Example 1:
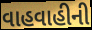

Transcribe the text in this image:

વાહવાહીની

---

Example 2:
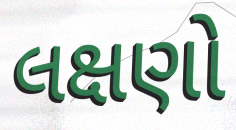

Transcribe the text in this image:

લક્ષણો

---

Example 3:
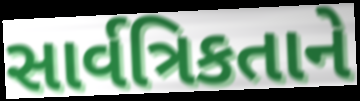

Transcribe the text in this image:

સાર્વત્રિકતાને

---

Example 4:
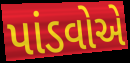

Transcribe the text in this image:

પાંડવોએ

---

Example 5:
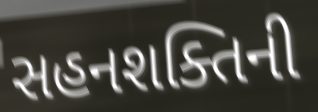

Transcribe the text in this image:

સહનશક્તિની